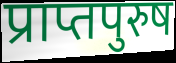
प्राप्तपुरुष